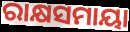
ରାକ୍ଷସମାୟା